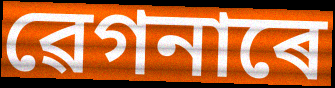
ৱেগনাৰে